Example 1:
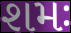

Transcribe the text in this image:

શમઃ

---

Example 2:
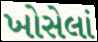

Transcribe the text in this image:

ખોસેલાં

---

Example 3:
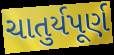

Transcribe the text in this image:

ચાતુર્યપૂર્ણ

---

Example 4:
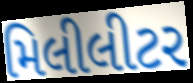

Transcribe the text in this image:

મિલીલીટર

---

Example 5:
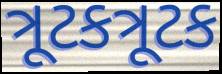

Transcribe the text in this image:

ત્રૂટકત્રૂટક